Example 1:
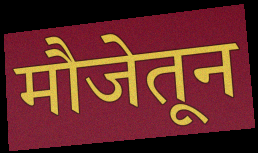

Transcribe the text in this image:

मौजेतून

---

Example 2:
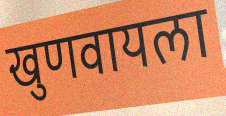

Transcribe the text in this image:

खुणवायला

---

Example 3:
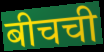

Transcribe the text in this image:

बीचची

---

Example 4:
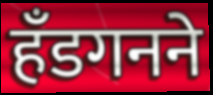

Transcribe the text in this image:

हँडगनने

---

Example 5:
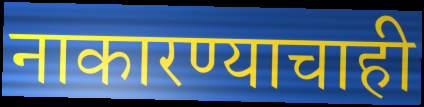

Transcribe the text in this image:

नाकारण्याचाही